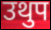
उथुप